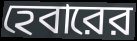
হেবারের